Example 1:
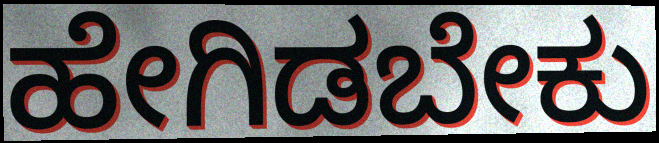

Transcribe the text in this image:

ಹೇಗಿಡಬೇಕು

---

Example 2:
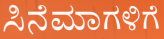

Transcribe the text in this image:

ಸಿನೆಮಾಗಳಿಗೆ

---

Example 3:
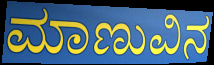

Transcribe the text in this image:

ಮಾಣುವಿನ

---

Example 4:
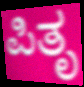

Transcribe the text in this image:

ಪಿತೃ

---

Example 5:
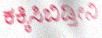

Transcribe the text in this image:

ಕಕ್ಕಿಸಿಬಿಡ್ತೀನಿ